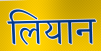
लियान